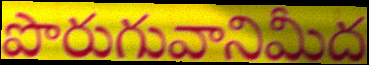
పొరుగువానిమీద